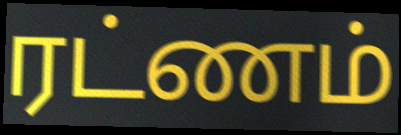
ரட்ணம்